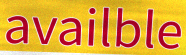
availble